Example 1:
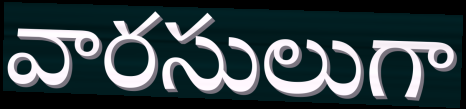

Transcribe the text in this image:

వారసులుగా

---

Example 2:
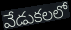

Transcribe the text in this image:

వేడుకలలో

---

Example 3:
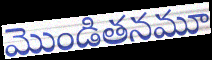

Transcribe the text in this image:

మొండితనమూ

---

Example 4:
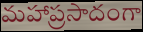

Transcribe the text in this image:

మహాప్రసాదంగా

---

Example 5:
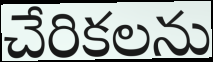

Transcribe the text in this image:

చేరికలను